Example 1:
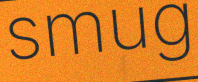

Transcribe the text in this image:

smug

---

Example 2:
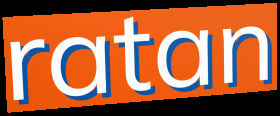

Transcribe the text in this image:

ratan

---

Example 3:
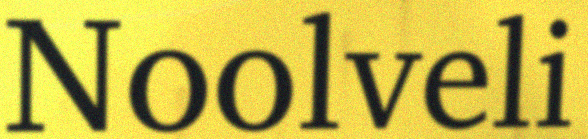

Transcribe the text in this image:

Noolveli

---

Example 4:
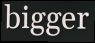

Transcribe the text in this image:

bigger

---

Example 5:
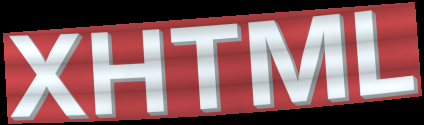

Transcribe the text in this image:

XHTML